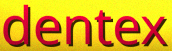
dentex